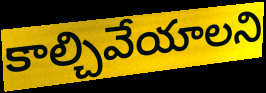
కాల్చివేయాలని